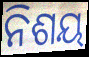
ନିଶୟ